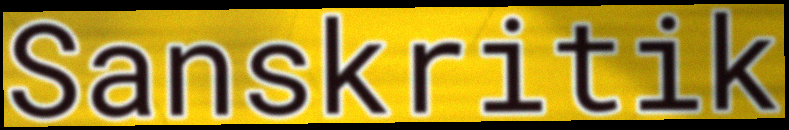
Sanskritik